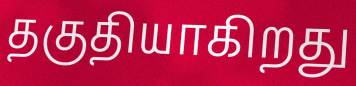
தகுதியாகிறது